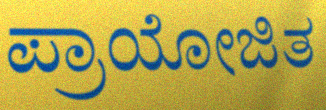
ಪ್ರಾಯೋಜಿತ